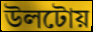
উলটোয়